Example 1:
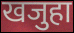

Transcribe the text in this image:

खजुहा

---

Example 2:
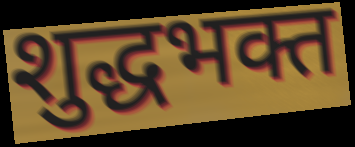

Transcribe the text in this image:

शुद्धभक्त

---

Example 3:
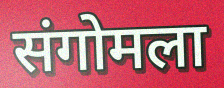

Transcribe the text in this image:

संगोमला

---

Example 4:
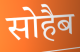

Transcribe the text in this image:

सोहैब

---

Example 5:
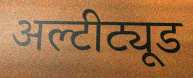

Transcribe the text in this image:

अल्टीट्यूड